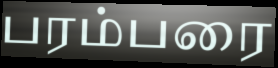
பரம்பரை